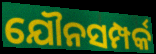
ଯୌନସମ୍ପର୍କ